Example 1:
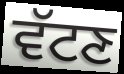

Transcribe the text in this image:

ਵੱਟਣ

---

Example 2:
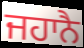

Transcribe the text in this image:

ਜਹਾਨੈ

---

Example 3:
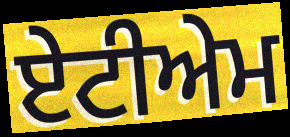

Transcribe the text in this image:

ਏਟੀਅੇਮ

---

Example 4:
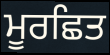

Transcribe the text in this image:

ਮੂਰਛਿਤ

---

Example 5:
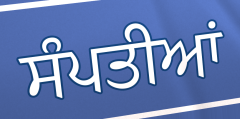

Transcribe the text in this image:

ਸੰਪਤੀਆਂ